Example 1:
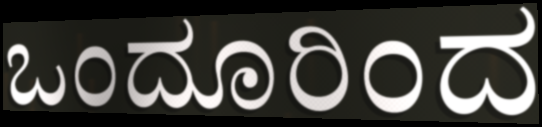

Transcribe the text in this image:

ಒಂದೂರಿಂದ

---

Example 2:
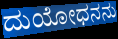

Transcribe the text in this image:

ದುಯೋಧನನು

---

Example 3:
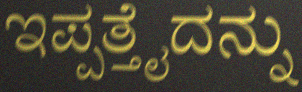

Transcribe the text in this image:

ಇಪ್ಪತ್ತೈದನ್ನು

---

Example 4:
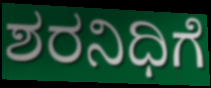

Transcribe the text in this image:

ಶರನಿಧಿಗೆ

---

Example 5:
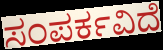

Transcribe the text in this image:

ಸಂಪರ್ಕವಿದೆ